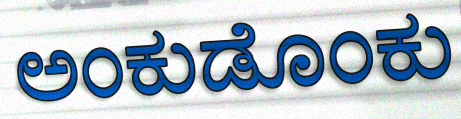
ಅಂಕುಡೊಂಕು